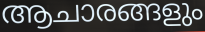
ആചാരങ്ങളും